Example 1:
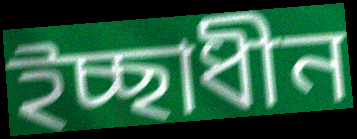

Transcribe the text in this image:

ইচ্ছাধীন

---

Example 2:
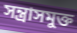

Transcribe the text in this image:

সন্ত্রাসমুক্ত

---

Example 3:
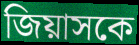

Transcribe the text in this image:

জিয়াসকে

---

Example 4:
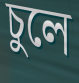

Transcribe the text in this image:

চুলে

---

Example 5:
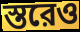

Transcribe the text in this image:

স্তরেও